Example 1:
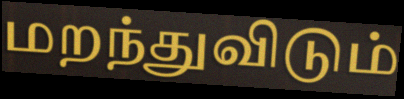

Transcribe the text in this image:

மறந்துவிடும்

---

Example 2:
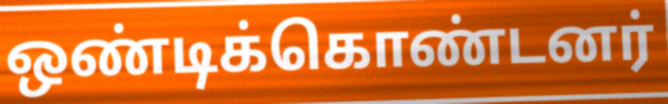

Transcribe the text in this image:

ஒண்டிக்கொண்டனர்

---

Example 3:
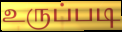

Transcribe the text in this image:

உருப்படி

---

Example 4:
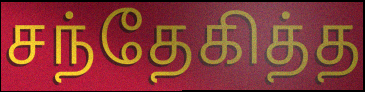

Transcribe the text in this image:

சந்தேகித்த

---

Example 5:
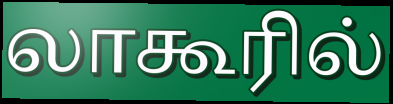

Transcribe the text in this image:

லாகூரில்